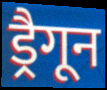
ड्रैगून